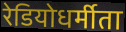
रेडियोधर्मीता